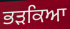
ਭੜਕਿਆ